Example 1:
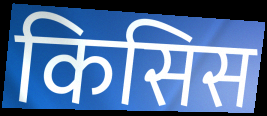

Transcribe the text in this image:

किसिस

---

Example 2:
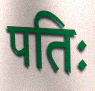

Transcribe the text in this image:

पतिः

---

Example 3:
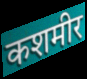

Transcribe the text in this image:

कशमीर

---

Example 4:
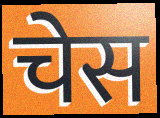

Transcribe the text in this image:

चेस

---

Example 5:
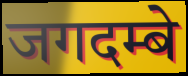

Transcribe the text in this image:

जगदम्बे